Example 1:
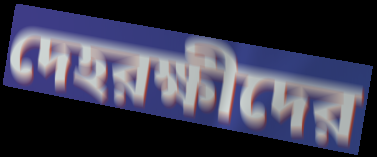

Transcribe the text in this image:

দেহরক্ষীদের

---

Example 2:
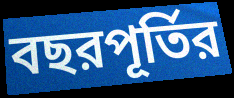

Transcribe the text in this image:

বছরপূর্তির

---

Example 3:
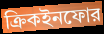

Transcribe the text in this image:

ক্রিকইনফোর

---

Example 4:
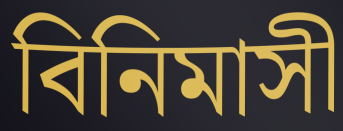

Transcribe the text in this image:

বিনিমাসী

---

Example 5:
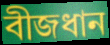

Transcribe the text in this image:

বীজধান